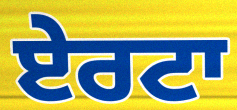
ਏਰਟਾ